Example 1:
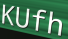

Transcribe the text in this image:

KUfh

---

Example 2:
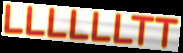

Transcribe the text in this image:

LLLLLLTT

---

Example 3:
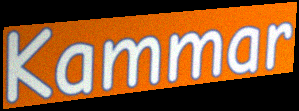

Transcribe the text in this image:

Kammar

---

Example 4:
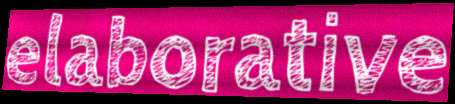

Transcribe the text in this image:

elaborative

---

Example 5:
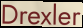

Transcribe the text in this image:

Drexler